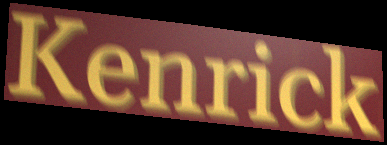
Kenrick